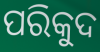
ପରିକୁଦ